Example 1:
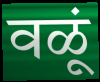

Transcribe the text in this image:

वळूं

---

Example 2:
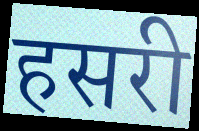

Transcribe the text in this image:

हसरी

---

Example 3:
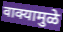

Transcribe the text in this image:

वाक्यामुळे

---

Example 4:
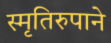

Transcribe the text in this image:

स्मृतिरुपाने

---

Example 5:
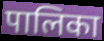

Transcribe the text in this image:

पालिका